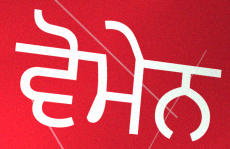
ਵੋਮੇਨ